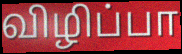
விழிப்பா